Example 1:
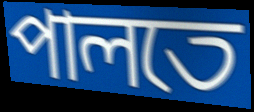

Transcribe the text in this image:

পালতে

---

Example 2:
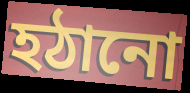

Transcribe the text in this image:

হঠানো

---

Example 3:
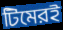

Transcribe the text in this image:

টিমেরই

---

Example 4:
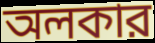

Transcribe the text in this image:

অলকার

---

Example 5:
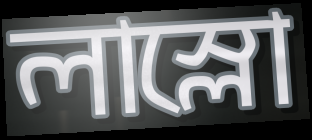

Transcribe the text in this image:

লাস্লো